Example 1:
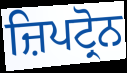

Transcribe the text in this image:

ਜ਼ਿਪਟ੍ਰੋਨ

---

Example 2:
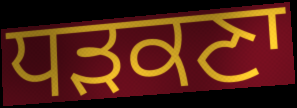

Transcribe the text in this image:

ਧੜਕਣਾ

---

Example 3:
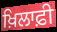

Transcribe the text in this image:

ਖ਼ਿਲਾਫ਼ੀ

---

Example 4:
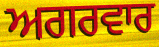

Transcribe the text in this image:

ਅਗਰਵਾਰ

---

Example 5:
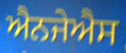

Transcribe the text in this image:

ਐਨਜੇਐਸ